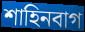
শাহিনবাগ